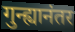
गुन्ह्यानंतर